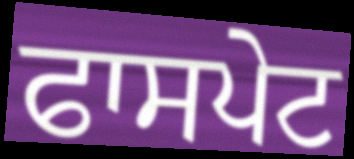
ਫਾਸਪੇਟ